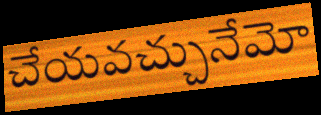
చేయవచ్చునేమో